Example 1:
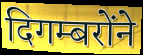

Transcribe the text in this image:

दिगम्बरोंने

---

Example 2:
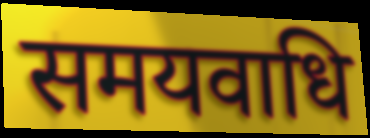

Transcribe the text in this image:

समयवाधि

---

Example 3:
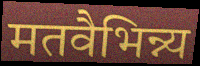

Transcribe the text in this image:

मतवैभिन्न्य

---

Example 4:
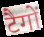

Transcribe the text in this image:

टैगों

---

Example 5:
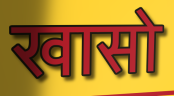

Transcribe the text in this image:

खासो